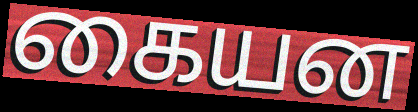
கையன